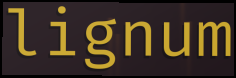
lignum